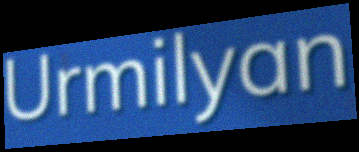
Urmilyan